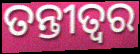
ତନ୍ତୀତ୍ୱର